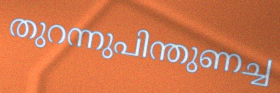
തുറന്നുപിന്തുണച്ച